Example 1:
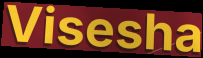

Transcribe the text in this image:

Visesha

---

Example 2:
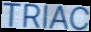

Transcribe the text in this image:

TRIAC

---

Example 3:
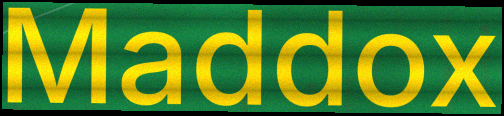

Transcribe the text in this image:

Maddox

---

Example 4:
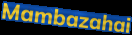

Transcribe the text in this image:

Mambazahai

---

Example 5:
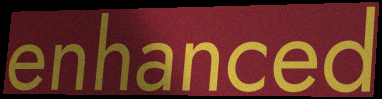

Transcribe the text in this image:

enhanced